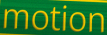
motion